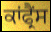
ਕਾਂਫ੍ਰੈਂਸ